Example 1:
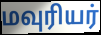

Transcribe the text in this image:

மவுரியர்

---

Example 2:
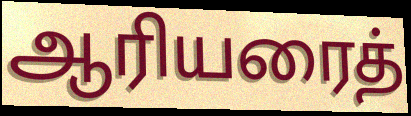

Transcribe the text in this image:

ஆரியரைத்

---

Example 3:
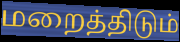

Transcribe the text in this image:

மறைத்திடும்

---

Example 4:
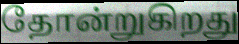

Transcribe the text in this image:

தோன்றுகிறது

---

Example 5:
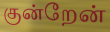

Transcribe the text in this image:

குன்றேன்